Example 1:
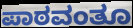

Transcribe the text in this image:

ಪಾಠವಂತೂ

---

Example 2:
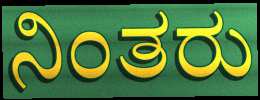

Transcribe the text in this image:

ನಿಂತರು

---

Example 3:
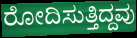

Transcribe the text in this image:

ರೋದಿಸುತ್ತಿದ್ದವು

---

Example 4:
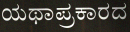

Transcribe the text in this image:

ಯಥಾಪ್ರಕಾರದ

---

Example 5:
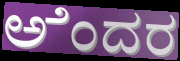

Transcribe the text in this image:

ಅೆಂದರ